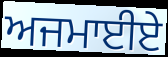
ਅਜਮਾਈਏ